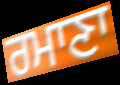
ਰਮਾਣਾ